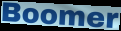
Boomer